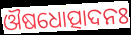
ଔଷଧୋତ୍ପାଦନଃ